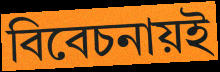
বিবেচনায়ই